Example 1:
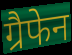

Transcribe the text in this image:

ग्रैफेन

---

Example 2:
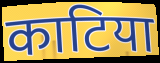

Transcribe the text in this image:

काटिया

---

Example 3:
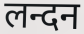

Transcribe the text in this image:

लन्दन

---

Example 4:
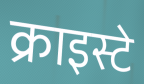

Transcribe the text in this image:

क्राइस्टे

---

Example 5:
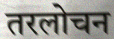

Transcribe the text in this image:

तरलोचन